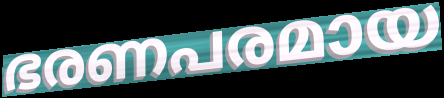
ഭരണപരമായ